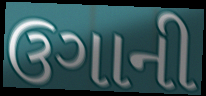
ઉગાની